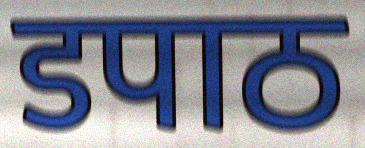
डपाठ